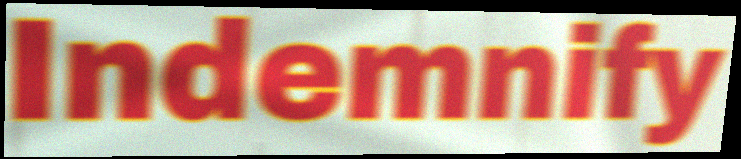
Indemnify